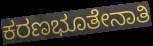
ಕರಣಭೂತೇನಾತಿ